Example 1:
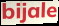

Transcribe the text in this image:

bijale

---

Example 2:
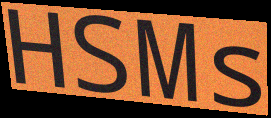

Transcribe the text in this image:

HSMs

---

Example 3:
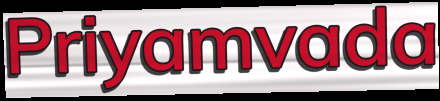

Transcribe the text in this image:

Priyamvada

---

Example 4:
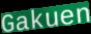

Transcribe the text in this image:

Gakuen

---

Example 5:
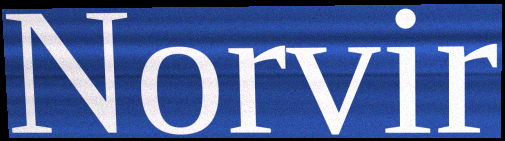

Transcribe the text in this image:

Norvir